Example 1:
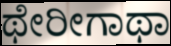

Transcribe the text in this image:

ಥೇರೀಗಾಥಾ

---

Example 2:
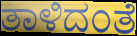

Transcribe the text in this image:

ತಾಳಿದಂತೆ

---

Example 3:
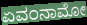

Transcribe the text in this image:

ಏವಂನಾಮೋ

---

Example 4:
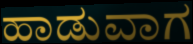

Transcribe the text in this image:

ಹಾಡುವಾಗ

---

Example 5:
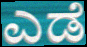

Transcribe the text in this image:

ಎಡೆ